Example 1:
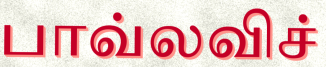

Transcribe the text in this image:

பாவ்லவிச்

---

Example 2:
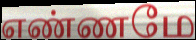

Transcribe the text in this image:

எண்ணமே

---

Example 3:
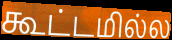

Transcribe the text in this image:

கூட்டமில்ல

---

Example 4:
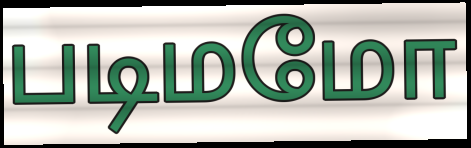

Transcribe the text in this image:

படிமமோ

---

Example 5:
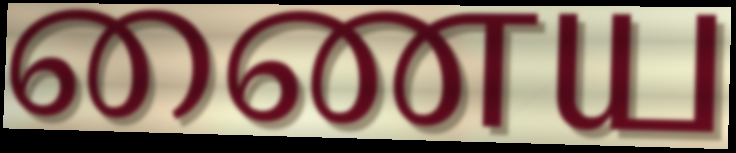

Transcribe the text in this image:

ணைய